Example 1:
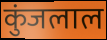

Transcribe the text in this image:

कुंजलाल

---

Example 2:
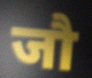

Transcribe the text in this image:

जौ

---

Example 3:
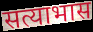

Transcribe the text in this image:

सत्याभास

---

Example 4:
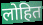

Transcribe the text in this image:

लोहित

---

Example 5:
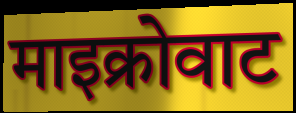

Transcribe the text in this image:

माइक्रोवाट